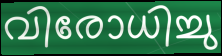
വിരോധിച്ചു